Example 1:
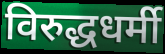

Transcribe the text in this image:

विरुद्धधर्मी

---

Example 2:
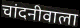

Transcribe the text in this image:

चांदनीवाला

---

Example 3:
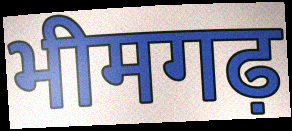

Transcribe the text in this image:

भीमगढ़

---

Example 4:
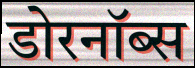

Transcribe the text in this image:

डोरनॉब्स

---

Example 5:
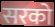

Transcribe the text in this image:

सरको